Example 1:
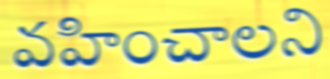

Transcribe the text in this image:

వహించాలని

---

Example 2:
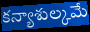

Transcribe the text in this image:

కన్యాశుల్కమే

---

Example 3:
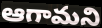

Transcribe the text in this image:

ఆగామని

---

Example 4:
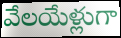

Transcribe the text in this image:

వేలయేళ్లుగా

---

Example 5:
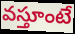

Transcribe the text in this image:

వస్తూంటే